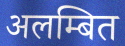
अलम्बित